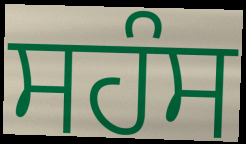
ਸਹੰਸ